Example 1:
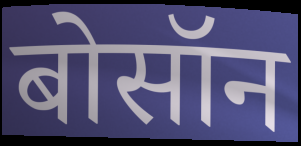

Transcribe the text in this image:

बोसॉन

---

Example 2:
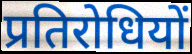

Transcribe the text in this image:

प्रतिरोधियों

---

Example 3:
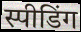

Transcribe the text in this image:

स्‍पीडिंग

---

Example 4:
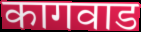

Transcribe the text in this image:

कागवाड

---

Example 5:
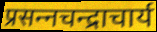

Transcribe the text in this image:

प्रसन्नचन्द्राचार्य